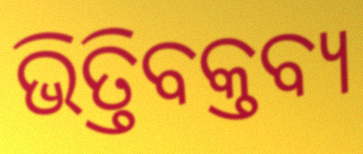
ଭିତ୍ତିବକ୍ତବ୍ୟ